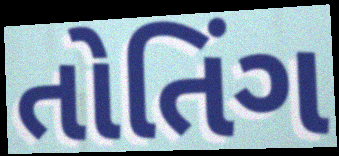
તોતિંગ